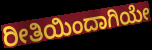
ರೀತಿಯಿಂದಾಗಿಯೇ